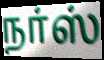
நர்ஸ்